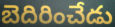
బెదిరించేడు